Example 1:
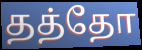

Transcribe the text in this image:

தத்தோ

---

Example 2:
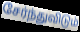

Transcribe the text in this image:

சேர்ந்துவிடும்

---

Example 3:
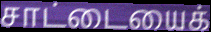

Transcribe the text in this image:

சாட்டையைக்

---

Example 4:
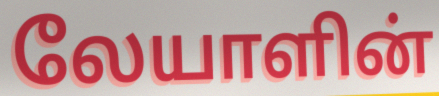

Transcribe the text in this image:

லேயாளின்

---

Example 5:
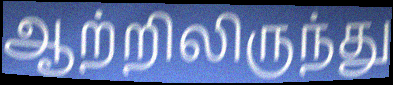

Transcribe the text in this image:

ஆற்றிலிருந்து